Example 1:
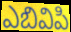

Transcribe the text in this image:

ఎబివిపి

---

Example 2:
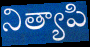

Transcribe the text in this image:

నిత్యాపి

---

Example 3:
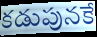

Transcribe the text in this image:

కడుపునకే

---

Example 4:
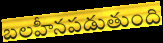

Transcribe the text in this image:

బలహీనపడుతుంది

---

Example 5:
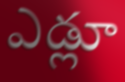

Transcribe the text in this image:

ఎడ్లూ